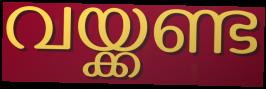
വയ്ക്കണ്ട